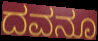
ದವನೂ